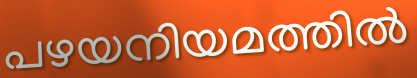
പഴയനിയമത്തിൽ